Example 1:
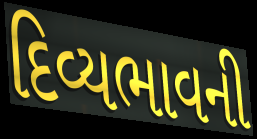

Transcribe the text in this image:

દિવ્યભાવની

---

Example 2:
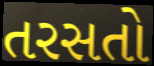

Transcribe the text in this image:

તરસતો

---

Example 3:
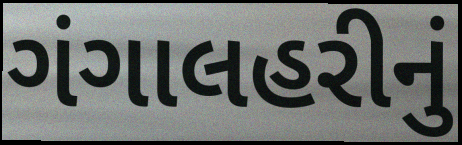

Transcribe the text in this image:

ગંગાલહરીનું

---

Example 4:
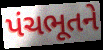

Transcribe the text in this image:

પંચભૂતને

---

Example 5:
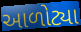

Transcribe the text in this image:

આળોટ્યા